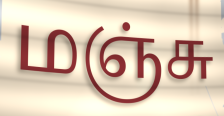
மஞ்சு